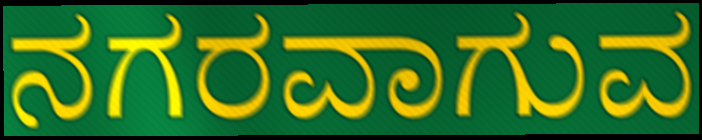
ನಗರವಾಗುವ